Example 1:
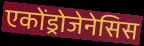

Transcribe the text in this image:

एकोंड्रोजेनेसिस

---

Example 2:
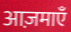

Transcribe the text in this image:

आज़माएँ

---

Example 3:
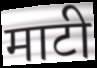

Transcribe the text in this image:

माटी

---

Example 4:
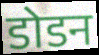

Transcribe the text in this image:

डोडन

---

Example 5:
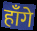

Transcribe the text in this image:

हाँगे